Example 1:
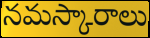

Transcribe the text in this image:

నమస్కారాలు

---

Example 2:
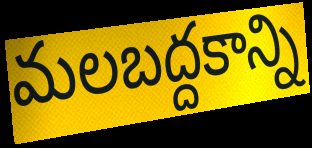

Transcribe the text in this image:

మలబద్దకాన్ని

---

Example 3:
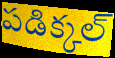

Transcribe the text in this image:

పడిక్కల్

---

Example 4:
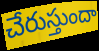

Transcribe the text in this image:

చేరుస్తుందా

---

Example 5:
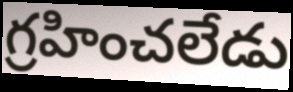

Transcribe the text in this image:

గ్రహించలేడు